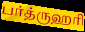
பர்த்ருஹரி